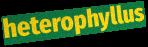
heterophyllus